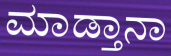
ಮಾಡ್ತಾನಾ